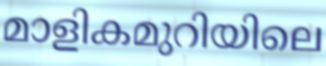
മാളികമുറിയിലെ